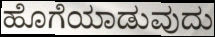
ಹೊಗೆಯಾಡುವುದು